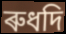
ৰুধদি